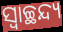
ସ୍ୱାଚ୍ଛନ୍ଦ୍ୟ